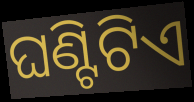
ଘଣ୍ଟିଟିଏ